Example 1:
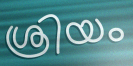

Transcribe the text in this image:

ശ്രിയം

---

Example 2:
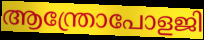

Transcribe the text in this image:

ആന്ത്രോപോളജി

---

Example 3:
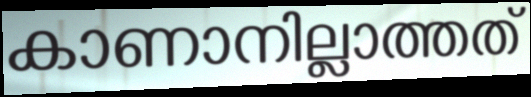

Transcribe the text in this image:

കാണാനില്ലാത്തത്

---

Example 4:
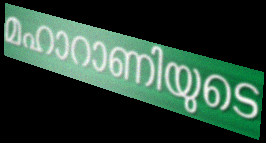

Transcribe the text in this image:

മഹാറാണിയുടെ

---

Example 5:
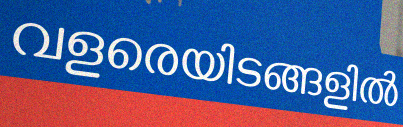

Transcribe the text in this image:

വളരെയിടങ്ങളിൽ